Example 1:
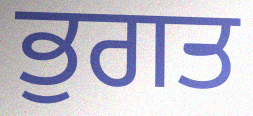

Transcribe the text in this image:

ਭੁਗਤ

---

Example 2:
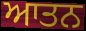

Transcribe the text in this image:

ਆਤਨ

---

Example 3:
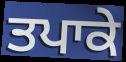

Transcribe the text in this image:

ਤਪਾਕੇ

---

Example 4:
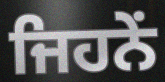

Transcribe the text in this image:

ਜਿਹਨੇਂ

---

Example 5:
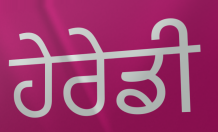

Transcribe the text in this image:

ਹੇਰੇਡੀ